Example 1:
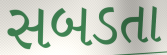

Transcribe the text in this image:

સબડતા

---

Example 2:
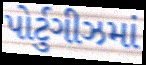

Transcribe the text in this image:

પોર્ટુગીઝમાં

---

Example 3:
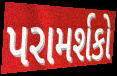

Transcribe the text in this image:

પરામર્શકો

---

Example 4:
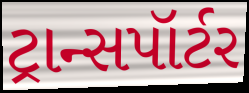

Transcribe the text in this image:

ટ્રાન્સપૉર્ટર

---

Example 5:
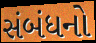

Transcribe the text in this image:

સંબંધનો